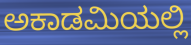
ಅಕಾಡಮಿಯಲ್ಲಿ